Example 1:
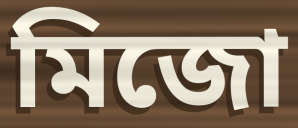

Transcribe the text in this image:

মিজো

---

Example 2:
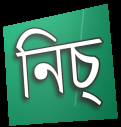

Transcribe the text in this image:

নিচ্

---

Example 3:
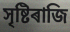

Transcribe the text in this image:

সৃষ্টিৰাজি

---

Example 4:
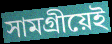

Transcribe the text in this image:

সামগ্ৰীয়েই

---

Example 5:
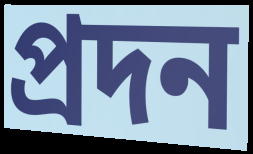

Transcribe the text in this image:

প্ৰদন